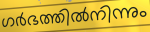
ഗർഭത്തിൽനിന്നും